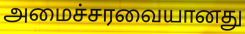
அமைச்சரவையானது